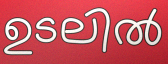
ഉടലിൽ